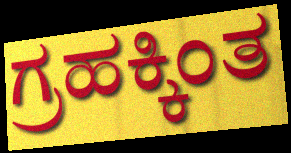
ಗ್ರಹಕ್ಕಿಂತ